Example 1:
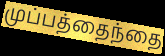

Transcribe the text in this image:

முப்பத்தைந்தை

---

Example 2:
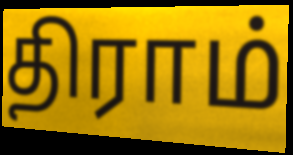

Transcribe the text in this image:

திராம்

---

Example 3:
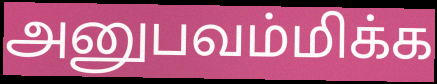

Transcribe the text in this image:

அனுபவம்மிக்க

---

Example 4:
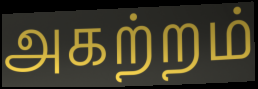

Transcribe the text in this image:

அகற்றம்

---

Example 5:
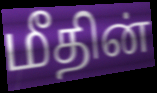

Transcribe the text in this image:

மீதின்